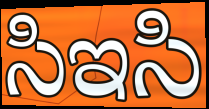
సిఇసి